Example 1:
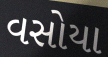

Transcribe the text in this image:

વસોયા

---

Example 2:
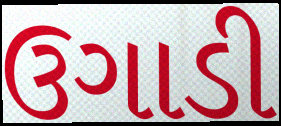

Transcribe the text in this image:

ઉગાડી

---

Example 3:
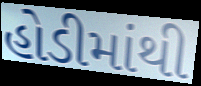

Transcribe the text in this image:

હોડીમાંથી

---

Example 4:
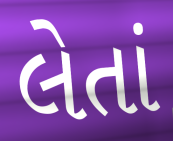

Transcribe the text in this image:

લેતાં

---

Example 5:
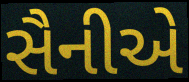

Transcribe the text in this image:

સૈનીએ